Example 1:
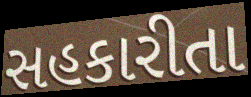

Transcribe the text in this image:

સહકારીતા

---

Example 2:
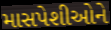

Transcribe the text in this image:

માસપેશીઓને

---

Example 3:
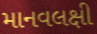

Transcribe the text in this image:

માનવલક્ષી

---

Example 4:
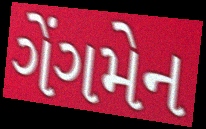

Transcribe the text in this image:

ગેંગમેન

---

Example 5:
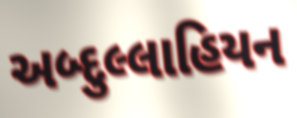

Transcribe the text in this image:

અબ્દુલ્લાહિયન